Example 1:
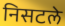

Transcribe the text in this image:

निसटले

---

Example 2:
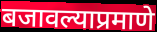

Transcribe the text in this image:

बजावल्याप्रमाणे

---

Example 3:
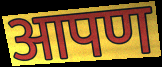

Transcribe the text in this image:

आपण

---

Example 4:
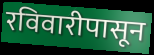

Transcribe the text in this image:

रविवारीपासून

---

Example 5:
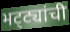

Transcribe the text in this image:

भट्ट्यांची